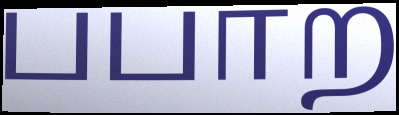
பபாற